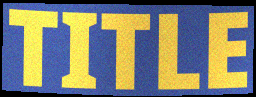
TITLE